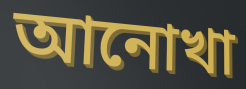
আনোখা